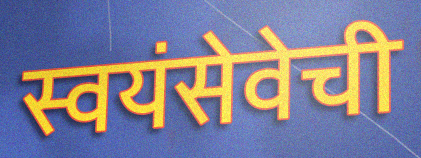
स्वयंसेवेची